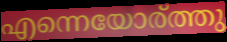
എന്നെയോര്ത്തു